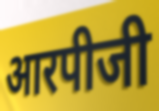
आरपीजी